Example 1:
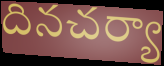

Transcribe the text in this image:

దినచర్యా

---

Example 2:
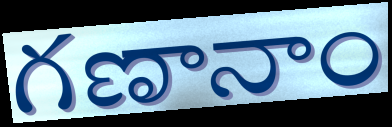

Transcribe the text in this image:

గణానాం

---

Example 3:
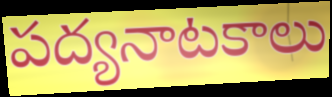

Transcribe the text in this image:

పద్యనాటకాలు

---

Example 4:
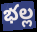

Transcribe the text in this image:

భల్ల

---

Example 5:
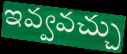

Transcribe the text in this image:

ఇవ్వవచ్చు